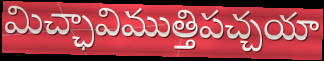
మిచ్ఛావిముత్తిపచ్చయా